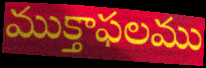
ముక్తాఫలము